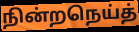
நின்றநெய்த்